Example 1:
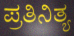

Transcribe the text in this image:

ಪ್ರತಿನಿತ್ಯ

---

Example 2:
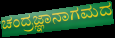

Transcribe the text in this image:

ಚಂದ್ರಜ್ಞಾನಾಗಮದ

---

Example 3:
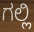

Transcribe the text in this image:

ಗಲ್ಲಿ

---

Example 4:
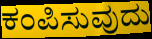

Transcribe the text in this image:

ಕಂಪಿಸುವುದು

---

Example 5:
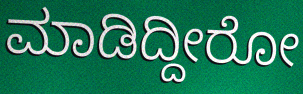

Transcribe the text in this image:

ಮಾಡಿದ್ದೀರೋ